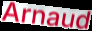
Arnaud